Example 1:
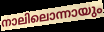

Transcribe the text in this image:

നാലിലൊന്നായും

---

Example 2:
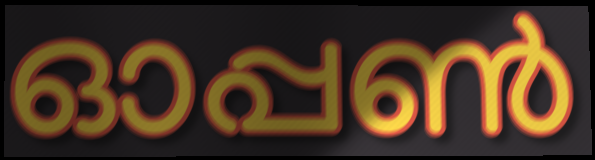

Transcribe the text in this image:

ഓപ്പൺ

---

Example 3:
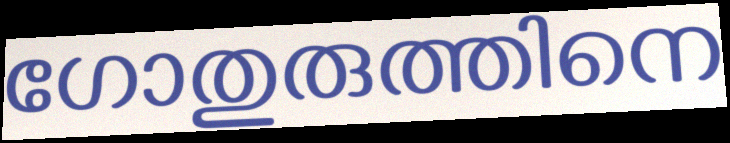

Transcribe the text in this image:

ഗോതുരുത്തിനെ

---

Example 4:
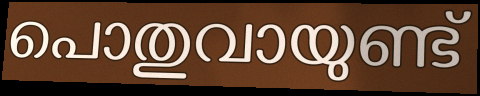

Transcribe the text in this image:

പൊതുവായുണ്ട്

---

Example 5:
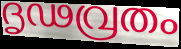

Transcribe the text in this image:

ദൃഢവ്രതം